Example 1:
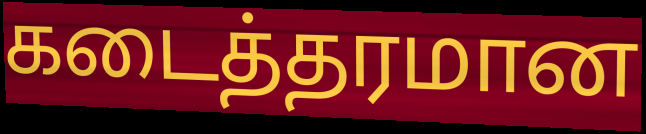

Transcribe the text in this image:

கடைத்தரமான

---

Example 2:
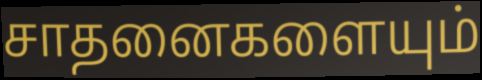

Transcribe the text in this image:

சாதனைகளையும்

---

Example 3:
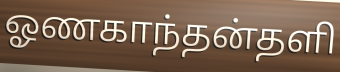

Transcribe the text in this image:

ஓணகாந்தன்தளி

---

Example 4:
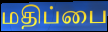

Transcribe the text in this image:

மதிப்பை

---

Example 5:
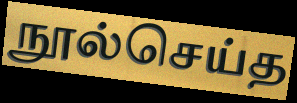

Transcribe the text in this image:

நூல்செய்த